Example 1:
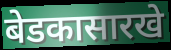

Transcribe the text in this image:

बेडकासारखे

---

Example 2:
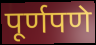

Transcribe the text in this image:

पूर्णपणे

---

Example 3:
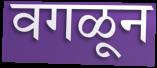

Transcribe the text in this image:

वगळून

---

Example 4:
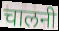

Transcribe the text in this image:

चालनी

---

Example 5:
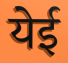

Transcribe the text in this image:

येई